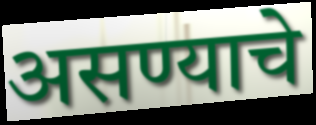
असण्याचे